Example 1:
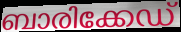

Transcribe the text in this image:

ബാരിക്കേഡ്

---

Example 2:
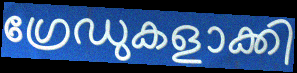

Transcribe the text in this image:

ഗ്രേഡുകളാക്കി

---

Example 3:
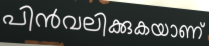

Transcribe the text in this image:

പിൻവലിക്കുകയാണ്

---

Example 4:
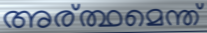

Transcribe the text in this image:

അര്ത്ഥമെന്ത്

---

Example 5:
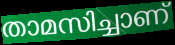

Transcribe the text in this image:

താമസിച്ചാണ്